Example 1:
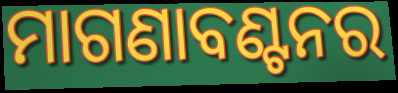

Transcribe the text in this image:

ମାଗଣାବଣ୍ଟନର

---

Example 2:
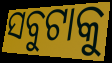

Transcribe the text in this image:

ସବୁଟାକୁ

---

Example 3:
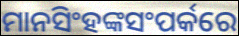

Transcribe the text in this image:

ମାନସିଂହଙ୍କସଂପର୍କରେ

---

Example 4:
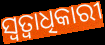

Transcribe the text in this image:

ସ୍ବତ୍ବାଧିକାରୀ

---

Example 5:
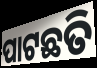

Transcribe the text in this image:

ପାଟଛତି